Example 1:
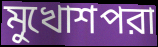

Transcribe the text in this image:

মুখোশপরা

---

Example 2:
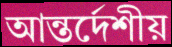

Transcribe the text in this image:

আন্তর্দেশীয়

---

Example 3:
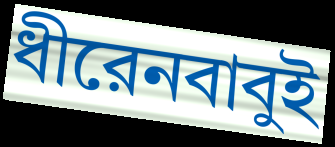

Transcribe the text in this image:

ধীরেনবাবুই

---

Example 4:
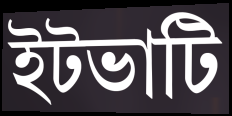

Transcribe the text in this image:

ইটভাটি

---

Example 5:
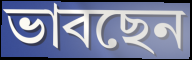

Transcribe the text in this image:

ভাবছেন